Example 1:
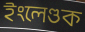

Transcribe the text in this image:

ইংলেণ্ডক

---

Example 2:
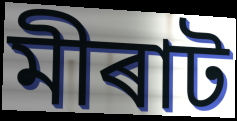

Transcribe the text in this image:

মীৰাট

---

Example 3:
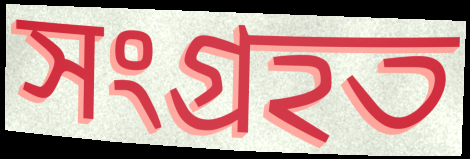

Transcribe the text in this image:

সংগ্ৰহত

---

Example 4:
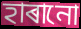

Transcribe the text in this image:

হাৰানো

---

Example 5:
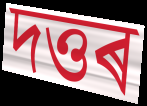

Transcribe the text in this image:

দত্তৰ